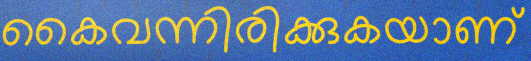
കൈവന്നിരിക്കുകയാണ്